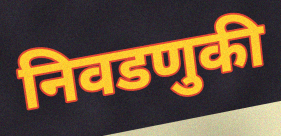
निवडणुकी